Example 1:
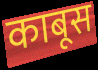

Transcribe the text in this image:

काबूस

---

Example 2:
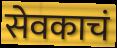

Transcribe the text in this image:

सेवकाचं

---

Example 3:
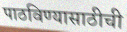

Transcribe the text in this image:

पाठविण्यासाठीची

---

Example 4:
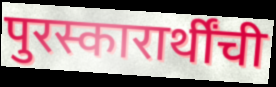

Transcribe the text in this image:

पुरस्कारार्थींची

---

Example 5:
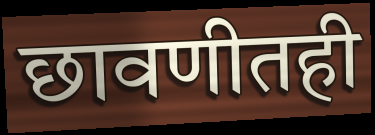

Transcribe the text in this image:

छावणीतही